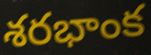
శరభాంక